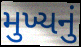
મુખ્યનું